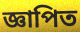
জ্ঞাপিত